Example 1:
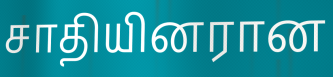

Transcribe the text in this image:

சாதியினரான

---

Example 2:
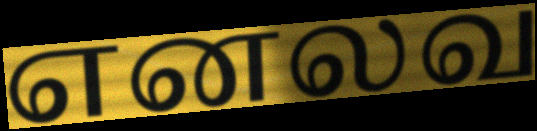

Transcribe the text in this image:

எனலவ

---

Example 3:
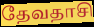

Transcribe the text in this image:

தேவதாசி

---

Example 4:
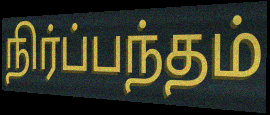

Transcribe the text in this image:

நிர்ப்பந்தம்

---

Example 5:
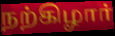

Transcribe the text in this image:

நற்கிழார்